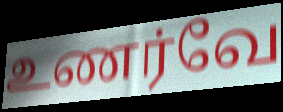
உணர்வே